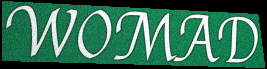
WOMAD